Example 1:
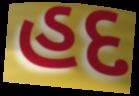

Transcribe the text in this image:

હદ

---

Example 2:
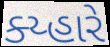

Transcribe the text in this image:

ક્ય્હારે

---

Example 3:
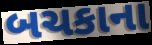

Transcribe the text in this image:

બચકાના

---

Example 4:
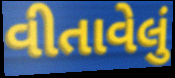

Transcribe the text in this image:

વીતાવેલું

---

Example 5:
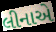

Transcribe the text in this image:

લીનાએ